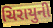
ચિરાયુની